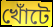
খোঁটে